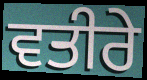
ਵਤੀਰੇ